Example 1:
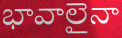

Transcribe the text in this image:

భావాలైనా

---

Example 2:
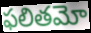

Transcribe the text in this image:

ఫలితమో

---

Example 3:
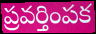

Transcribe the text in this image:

ప్రవర్తింపక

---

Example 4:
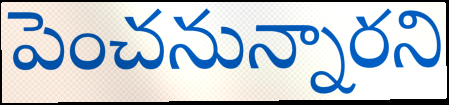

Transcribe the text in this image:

పెంచనున్నారని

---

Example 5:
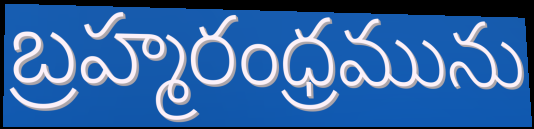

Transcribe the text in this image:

బ్రహ్మరంధ్రమును